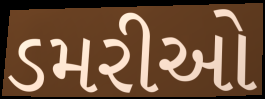
ડમરીઓ